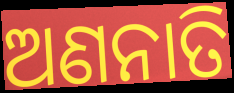
ଅଣନାତି